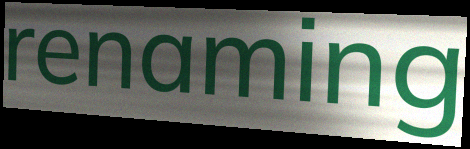
renaming